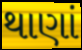
થાણાં